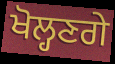
ਖੋਲ੍ਹਣਗੇ